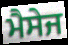
ਮੈਸੇਜ